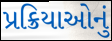
પ્રક્રિયાઓનું